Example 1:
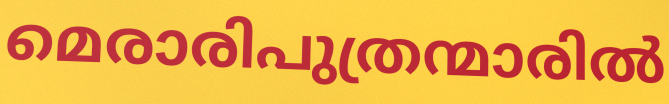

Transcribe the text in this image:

മെരാരിപുത്രന്മാരിൽ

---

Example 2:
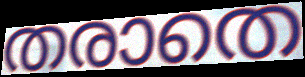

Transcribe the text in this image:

തരാതെ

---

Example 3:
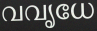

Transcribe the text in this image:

വവൃധേ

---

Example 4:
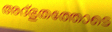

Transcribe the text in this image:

അദ്ഭുതത്തോടെ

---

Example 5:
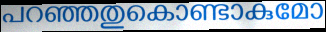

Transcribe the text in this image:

പറഞ്ഞതുകൊണ്ടാകുമോ